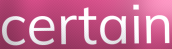
certain